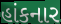
હાંકનાર